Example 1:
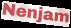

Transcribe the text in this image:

Nenjam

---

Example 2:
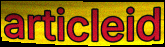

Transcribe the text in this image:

articleid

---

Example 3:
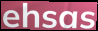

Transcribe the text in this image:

ehsas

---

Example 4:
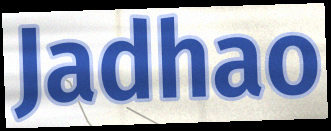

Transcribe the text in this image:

Jadhao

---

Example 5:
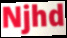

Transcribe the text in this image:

Njhd